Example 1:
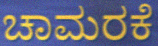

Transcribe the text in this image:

ಚಾಮರಕೆ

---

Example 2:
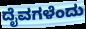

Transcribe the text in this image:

ದೈವಗಳೆಂದು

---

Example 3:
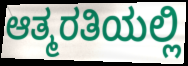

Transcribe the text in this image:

ಆತ್ಮರತಿಯಲ್ಲಿ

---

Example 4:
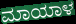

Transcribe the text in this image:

ಮಾಯಾಳ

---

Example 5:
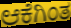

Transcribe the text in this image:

ಆಕೆಗಿಂತ